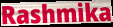
Rashmika